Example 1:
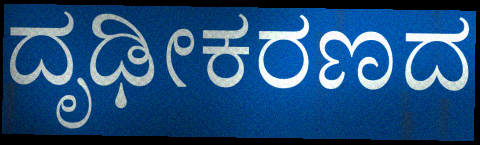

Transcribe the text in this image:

ದೃಢೀಕರಣದ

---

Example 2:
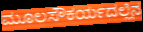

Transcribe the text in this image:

ಮೂಲಸೌಕರ್ಯದಲ್ಲಿನ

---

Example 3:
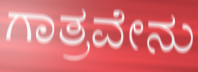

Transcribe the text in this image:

ಗಾತ್ರವೇನು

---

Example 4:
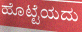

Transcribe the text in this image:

ಹೊಟ್ಟೆಯದು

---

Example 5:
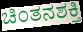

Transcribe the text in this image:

ಚಿಂತನಶಕ್ತಿ